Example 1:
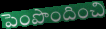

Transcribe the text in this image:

పెంపొందించి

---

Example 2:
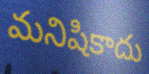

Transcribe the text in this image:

మనిషికాదు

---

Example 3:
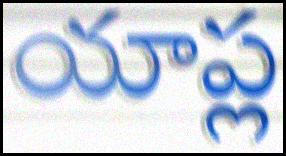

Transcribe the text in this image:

యాప్ల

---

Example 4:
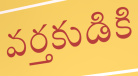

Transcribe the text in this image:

వర్తకుడికి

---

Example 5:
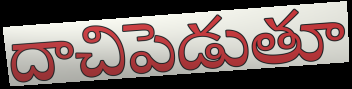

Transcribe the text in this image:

దాచిపెడుతూ